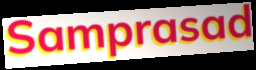
Samprasad